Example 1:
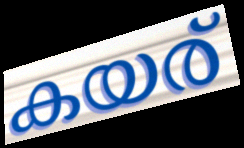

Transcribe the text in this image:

കയര്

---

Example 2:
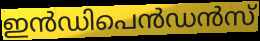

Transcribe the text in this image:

ഇൻഡിപെൻഡൻസ്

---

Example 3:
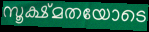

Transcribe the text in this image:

സൂക്ഷ്മതയോടെ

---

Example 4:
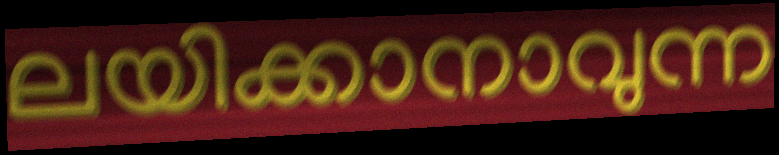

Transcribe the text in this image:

ലയിക്കാനാവുന്ന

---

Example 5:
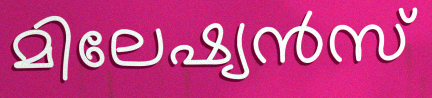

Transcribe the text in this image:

മിലേഷ്യൻസ്